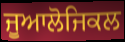
ਜੂਆਲੋਜਿਕਲ